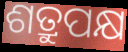
ଶତ୍ରୁପକ୍ଷ